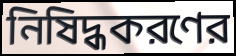
নিষিদ্ধকরণের